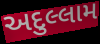
અદુલ્લામ